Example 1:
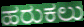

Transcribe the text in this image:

ಹರುಕಲು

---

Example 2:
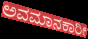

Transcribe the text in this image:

ಅವಮಾನಕಾರೀ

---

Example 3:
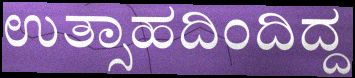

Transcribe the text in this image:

ಉತ್ಸಾಹದಿಂದಿದ್ದ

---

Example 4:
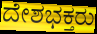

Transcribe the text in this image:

ದೇಶಭಕ್ತರು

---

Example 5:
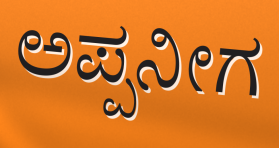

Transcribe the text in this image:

ಅಪ್ಪನೀಗ